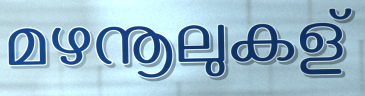
മഴനൂലുകള്